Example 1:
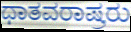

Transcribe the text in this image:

ಧಾತವರಾಷ್ರರು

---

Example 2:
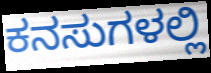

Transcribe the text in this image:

ಕನಸುಗಳಲ್ಲಿ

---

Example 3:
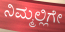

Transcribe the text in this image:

ನಿಮ್ಮಲ್ಲಿಗೇ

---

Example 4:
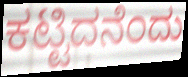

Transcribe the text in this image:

ಕಟ್ಟಿದನೆಂದು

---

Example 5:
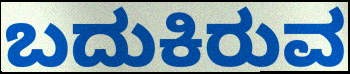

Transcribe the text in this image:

ಬದುಕಿರುವ